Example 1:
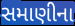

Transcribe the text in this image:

સમાણીના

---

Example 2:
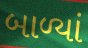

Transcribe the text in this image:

બાળ્યાં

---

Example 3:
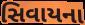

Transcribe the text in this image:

સિવાયના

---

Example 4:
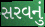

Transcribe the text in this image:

સરવનું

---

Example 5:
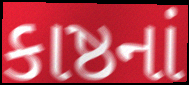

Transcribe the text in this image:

કાષ્ઠનાં